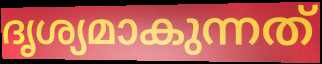
ദൃശ്യമാകുന്നത്